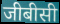
जीबीसी